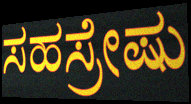
ಸಹಸ್ರೇಷು